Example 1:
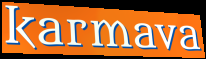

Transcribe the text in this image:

karmava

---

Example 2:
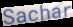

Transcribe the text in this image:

Sachar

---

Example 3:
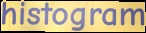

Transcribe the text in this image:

histogram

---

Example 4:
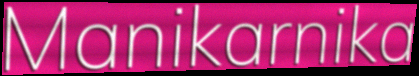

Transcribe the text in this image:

Manikarnika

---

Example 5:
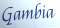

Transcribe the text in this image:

Gambia